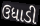
ઉધાડી